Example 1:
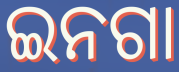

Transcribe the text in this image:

ଇନଗା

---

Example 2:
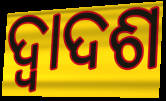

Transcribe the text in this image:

ଦ୍ୱାଦଶ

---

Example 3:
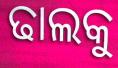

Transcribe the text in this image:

ଢାଲକୁ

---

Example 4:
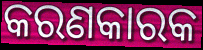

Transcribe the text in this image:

କରଣକାରକ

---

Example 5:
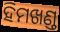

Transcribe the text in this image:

ହିମଖଣ୍ଡ